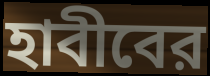
হাবীবের